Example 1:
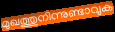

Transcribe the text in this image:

മുഖത്തുനിന്നുണ്ടാവുക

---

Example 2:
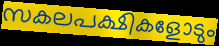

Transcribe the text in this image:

സകലപക്ഷികളോടും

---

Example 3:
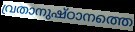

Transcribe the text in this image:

വ്രതാനുഷ്ഠാനത്തെ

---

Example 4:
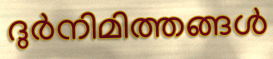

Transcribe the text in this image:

ദുർനിമിത്തങ്ങൾ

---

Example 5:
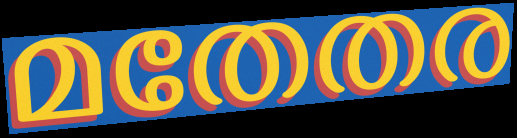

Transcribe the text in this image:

മതേതര